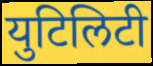
युटिलिटी